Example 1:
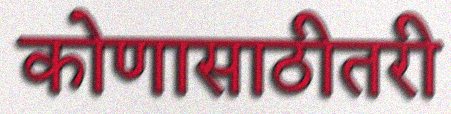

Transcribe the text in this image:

कोणासाठीतरी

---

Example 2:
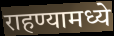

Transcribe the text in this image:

राहण्यामध्ये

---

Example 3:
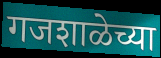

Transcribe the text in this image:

गजशाळेच्या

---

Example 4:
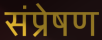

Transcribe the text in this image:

संप्रेषण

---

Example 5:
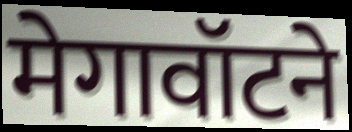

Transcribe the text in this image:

मेगावॉटने